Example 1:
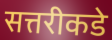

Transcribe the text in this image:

सत्तरीकडे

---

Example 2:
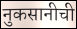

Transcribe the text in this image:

नुकसानीची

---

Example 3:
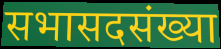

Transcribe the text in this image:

सभासदसंख्या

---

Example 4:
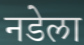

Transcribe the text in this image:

नडेला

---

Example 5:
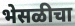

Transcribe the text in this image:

भेसळीचा